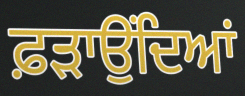
ਫ਼ੜਾਉਂਦਿਆਂ